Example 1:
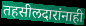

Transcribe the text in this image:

तहसीलदारांनाही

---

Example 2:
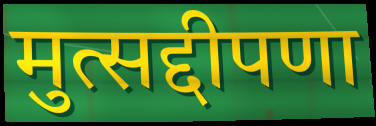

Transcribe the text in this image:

मुत्सद्दीपणा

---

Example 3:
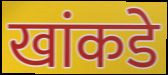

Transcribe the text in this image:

खांकडे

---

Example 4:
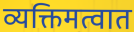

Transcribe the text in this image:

व्यक्तिमत्वात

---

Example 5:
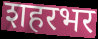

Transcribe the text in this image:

शहरभर